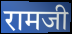
रामजी